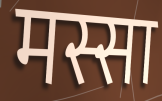
मस्‍सा